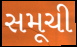
સમૂચી